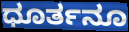
ಧೂರ್ತನೂ